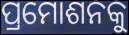
ପ୍ରମୋଶନକୁ